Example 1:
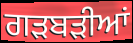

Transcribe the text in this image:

ਗੜਬੜੀਆਂ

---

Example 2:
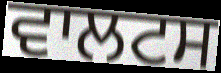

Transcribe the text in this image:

ਵਾਲਟਸ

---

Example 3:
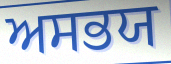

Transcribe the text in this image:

ਅਸਭਯ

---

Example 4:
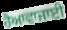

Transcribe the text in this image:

ਹੈਆਵਾਜਾਈ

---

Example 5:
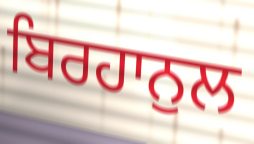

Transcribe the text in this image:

ਬਿਰਹਾਨੁਲ